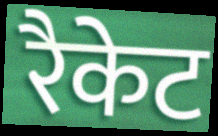
रैकेट